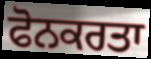
ਫੋਨਕਰਤਾ